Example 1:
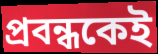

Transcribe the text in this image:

প্রবন্ধকেই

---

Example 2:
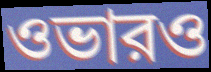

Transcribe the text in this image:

ওভারও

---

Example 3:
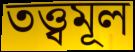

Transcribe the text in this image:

তত্ত্বমূল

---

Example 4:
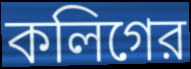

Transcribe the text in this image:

কলিগের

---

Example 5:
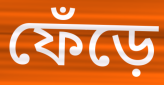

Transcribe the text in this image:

ফেঁড়ে